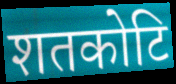
शतकोटि